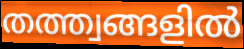
തത്ത്വങ്ങളിൽ